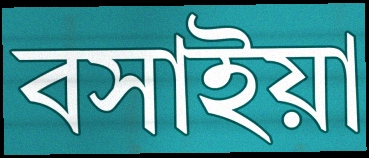
বসাইয়া